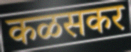
कळसकर